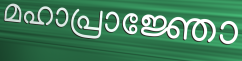
മഹാപ്രാജ്ഞോ